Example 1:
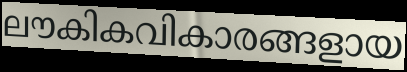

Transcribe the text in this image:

ലൗകികവികാരങ്ങളായ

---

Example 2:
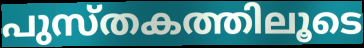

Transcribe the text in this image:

പുസ്തകത്തിലൂടെ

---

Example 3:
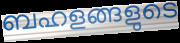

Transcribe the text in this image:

ബഹളങ്ങളുടെ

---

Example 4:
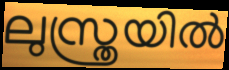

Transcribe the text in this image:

ലുസ്ത്രയിൽ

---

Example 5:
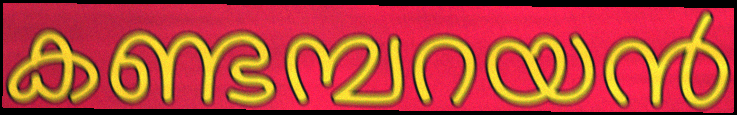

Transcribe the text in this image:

കണ്ടമ്പറയൻ